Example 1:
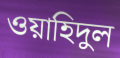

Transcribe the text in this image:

ওয়াহিদুল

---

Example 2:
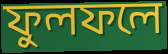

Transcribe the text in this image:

ফুলফলে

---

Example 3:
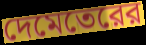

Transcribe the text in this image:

দেমেতেরের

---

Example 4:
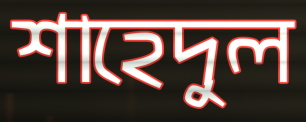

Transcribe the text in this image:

শাহেদুল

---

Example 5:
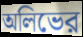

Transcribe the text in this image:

অলিভের